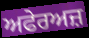
ਅਫੇਰਅਜ਼